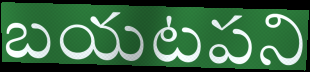
బయటపని